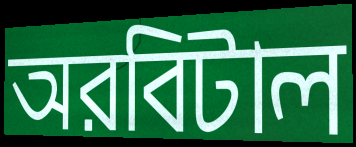
অরবিটাল